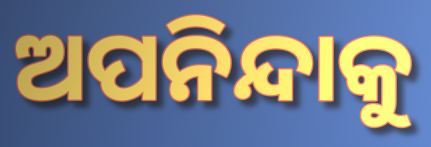
ଅପନିନ୍ଦାକୁ